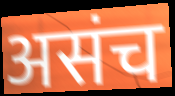
असंच